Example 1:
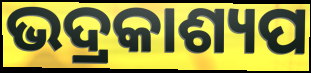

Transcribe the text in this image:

ଭଦ୍ରକାଶ୍ୟପ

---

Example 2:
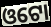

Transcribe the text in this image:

ଓଟୋ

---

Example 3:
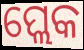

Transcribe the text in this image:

ପ୍ଲେକ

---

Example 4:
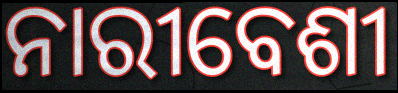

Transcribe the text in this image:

ନାରୀବେଶୀ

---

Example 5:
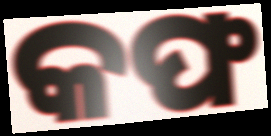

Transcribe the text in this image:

କଫ